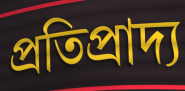
প্ৰতিপ্ৰাদ্য